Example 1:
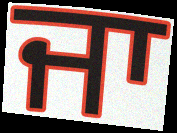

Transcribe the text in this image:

ਜਾ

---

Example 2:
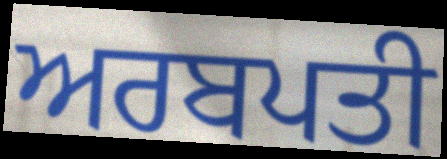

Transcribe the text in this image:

ਅਰਬਪਤੀ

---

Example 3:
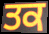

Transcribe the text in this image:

ਤਕ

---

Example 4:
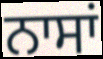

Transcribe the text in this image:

ਨਾਸਾਂ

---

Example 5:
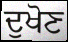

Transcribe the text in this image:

ਦੁਖੋਣ